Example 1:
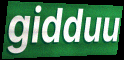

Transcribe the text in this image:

gidduu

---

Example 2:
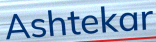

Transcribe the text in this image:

Ashtekar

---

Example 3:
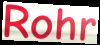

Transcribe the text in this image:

Rohr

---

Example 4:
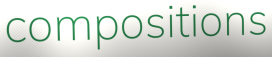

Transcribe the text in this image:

compositions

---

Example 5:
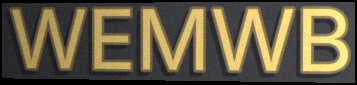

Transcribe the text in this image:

WEMWB